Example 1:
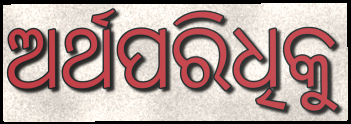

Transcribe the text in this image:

ଅର୍ଥପରିଧିକୁ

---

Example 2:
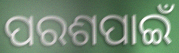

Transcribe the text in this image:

ପରଶପାଇଁ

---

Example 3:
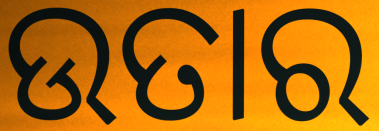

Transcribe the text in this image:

ଉତାର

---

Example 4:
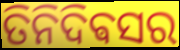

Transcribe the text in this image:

ତିନିଦିଵସର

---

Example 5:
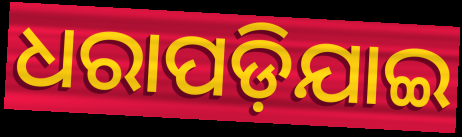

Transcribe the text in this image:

ଧରାପଡ଼ିଯାଇ